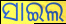
ସାଇଲ